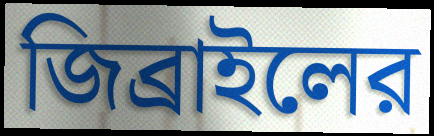
জিব্রাইলের